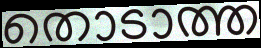
തൊടാത്ത